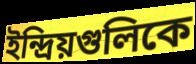
ইন্দ্রিয়গুলিকে